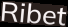
Ribet